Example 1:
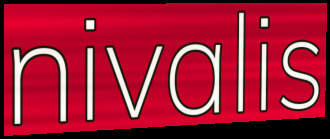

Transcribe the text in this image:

nivalis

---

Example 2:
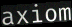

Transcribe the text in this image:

axiom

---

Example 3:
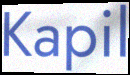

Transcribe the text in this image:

Kapil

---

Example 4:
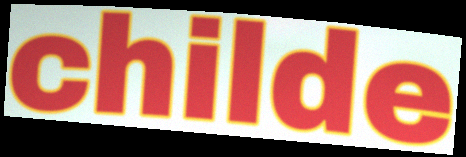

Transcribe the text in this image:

childe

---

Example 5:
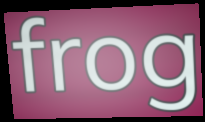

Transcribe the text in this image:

frog